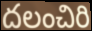
దలంచిరి